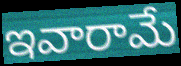
ఇవారామే